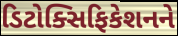
ડિટોક્સિફિકેશનને